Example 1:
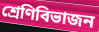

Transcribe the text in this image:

শ্রেণিবিভাজন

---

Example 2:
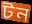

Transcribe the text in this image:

টন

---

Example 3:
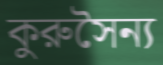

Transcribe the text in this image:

কুরুসৈন্য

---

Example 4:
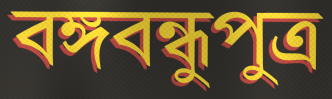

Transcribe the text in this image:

বঙ্গবন্ধুপুত্র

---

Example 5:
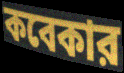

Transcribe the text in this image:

কবেকার